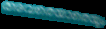
അവരെയാരെയും